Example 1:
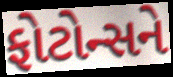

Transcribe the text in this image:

ફોટોન્સને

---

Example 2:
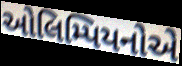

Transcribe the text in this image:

ઓલિમ્પિયનોએ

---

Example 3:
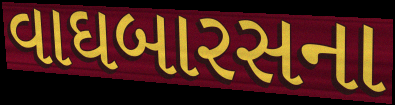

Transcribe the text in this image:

વાઘબારસના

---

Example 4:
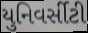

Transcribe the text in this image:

યુનિવર્સીટી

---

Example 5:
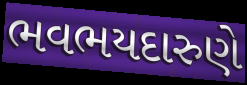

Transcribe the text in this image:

ભવભયદારુણે